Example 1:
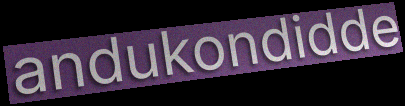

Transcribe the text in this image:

andukondidde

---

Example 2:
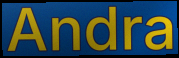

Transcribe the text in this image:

Andra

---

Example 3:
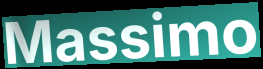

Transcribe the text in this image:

Massimo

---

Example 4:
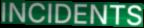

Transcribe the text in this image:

INCIDENTS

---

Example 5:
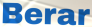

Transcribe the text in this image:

Berar